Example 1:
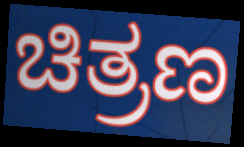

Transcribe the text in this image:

ಚಿತ್ರಣ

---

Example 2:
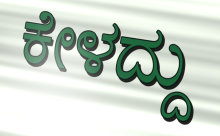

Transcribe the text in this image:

ಕೇಳದ್ದು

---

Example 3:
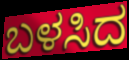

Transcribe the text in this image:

ಬಳಸಿದ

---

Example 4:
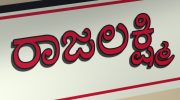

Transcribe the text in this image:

ರಾಜಲಕ್ಷ್ಮಿ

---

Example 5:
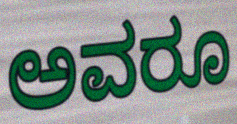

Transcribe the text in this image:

ಅವರೂ